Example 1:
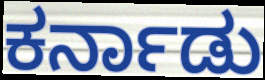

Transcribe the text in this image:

ಕರ್ನಾಡು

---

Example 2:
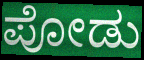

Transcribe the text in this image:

ಪೋಡು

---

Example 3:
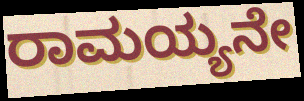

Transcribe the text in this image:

ರಾಮಯ್ಯನೇ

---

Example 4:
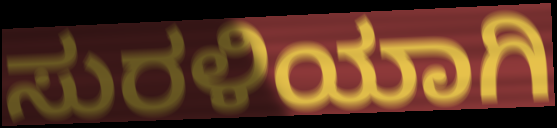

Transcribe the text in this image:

ಸುರಳಿಯಾಗಿ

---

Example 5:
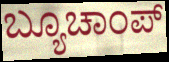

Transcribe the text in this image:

ಬ್ಯೂಚಾಂಪ್